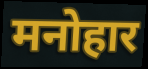
मनोहार